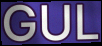
GUL